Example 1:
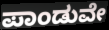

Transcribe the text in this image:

ಪಾಂಡುವೇ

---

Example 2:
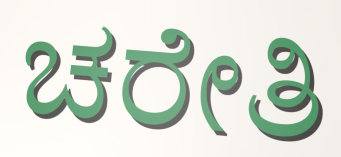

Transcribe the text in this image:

ಚರೇತಿ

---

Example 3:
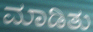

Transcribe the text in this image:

ಮಾಡಿತು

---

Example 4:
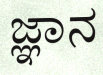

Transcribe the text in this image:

ಜ್ಞಾನ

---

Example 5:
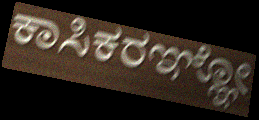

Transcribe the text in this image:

ಕಾಸಿಕರಞ್ಞೋ